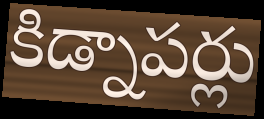
కిడ్నాపర్లు